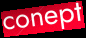
conept